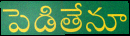
పెడితేనూ